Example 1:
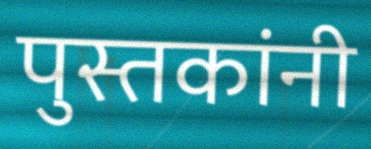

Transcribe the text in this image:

पुस्तकांनी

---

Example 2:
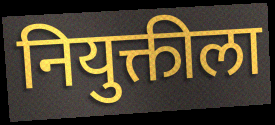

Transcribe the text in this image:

नियुक्तीला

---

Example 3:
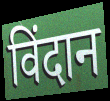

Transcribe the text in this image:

विंदान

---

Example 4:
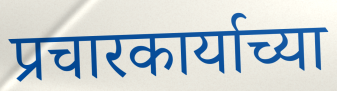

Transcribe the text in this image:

प्रचारकार्याच्या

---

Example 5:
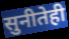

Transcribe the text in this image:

सुनीतेही